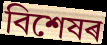
বিশেষৰ